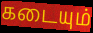
கடையும்